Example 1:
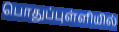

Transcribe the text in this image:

பொதுப்புள்ளியில்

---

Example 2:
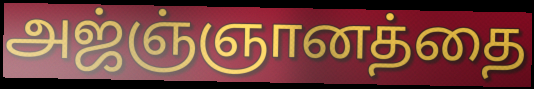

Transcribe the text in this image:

அஜ்ஞ்ஞானத்தை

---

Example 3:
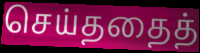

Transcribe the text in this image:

செய்ததைத்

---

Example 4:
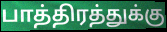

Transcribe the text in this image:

பாத்திரத்துக்கு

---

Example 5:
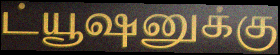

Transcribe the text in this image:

ட்யூஷனுக்கு